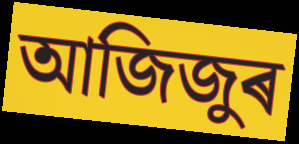
আজিজুৰ